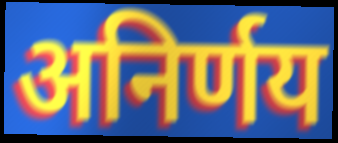
अनिर्णय